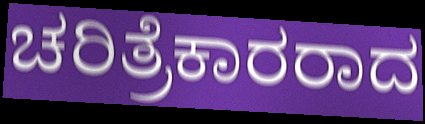
ಚರಿತ್ರೆಕಾರರಾದ